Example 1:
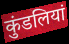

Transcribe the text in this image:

कुंडलियां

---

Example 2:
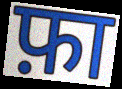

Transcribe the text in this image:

फ़ा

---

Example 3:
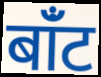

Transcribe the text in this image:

बांँट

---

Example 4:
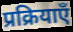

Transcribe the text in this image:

प्रक्रियाएँ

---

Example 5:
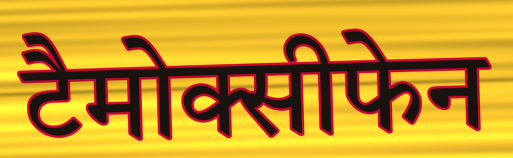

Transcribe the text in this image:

टैमोक्सीफेन